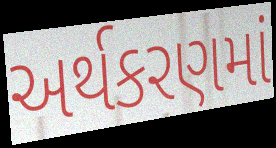
અર્થકરણમાં